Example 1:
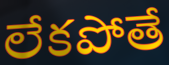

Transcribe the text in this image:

లేకపోతే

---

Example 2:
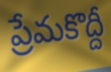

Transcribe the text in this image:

ప్రేమకొద్దీ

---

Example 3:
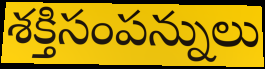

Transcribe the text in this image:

శక్తిసంపన్నులు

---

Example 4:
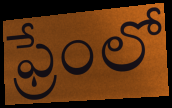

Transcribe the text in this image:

ఫ్రేంలో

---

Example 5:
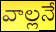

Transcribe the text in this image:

వాల్లనే